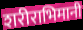
शरीराभिमानी